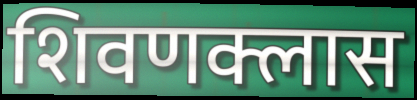
शिवणक्लास